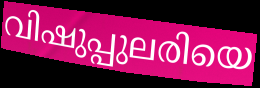
വിഷുപ്പുലരിയെ